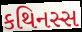
કથિનસ્સ